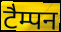
टैम्पन